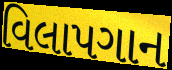
વિલાપગાન